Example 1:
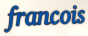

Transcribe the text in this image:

francois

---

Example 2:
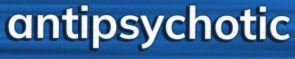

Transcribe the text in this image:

antipsychotic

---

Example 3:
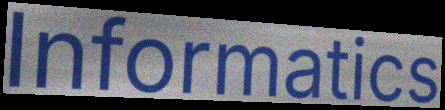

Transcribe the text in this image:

Informatics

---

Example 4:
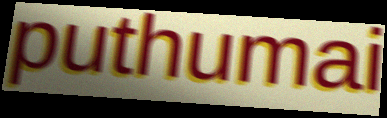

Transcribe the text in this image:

puthumai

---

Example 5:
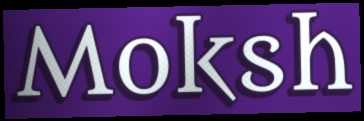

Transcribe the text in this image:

Moksh